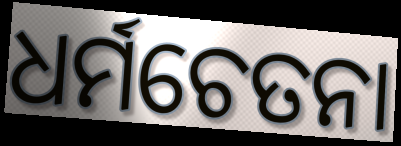
ଧର୍ମଚେତନା